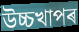
উচ্চখাপৰ